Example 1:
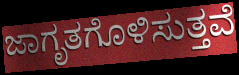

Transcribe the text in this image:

ಜಾಗೃತಗೊಳಿಸುತ್ತವೆ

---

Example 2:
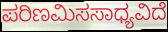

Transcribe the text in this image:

ಪರಿಣಮಿಸಸಾಧ್ಯವಿದೆ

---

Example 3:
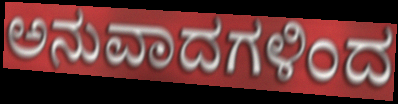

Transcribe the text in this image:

ಅನುವಾದಗಳಿಂದ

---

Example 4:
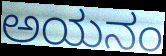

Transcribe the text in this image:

ಅಯನಂ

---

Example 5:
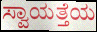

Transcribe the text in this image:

ಸ್ವಾಯತ್ತೆಯ